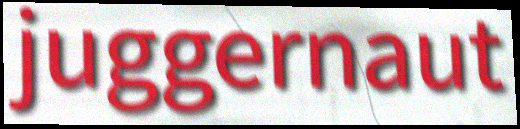
juggernaut